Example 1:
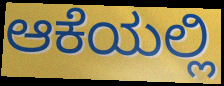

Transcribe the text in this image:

ಆಕೆಯಲ್ಲಿ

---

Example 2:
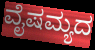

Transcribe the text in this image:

ವೈಷಮ್ಯದ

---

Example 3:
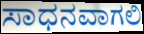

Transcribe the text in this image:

ಸಾಧನವಾಗಲಿ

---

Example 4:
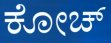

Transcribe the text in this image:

ಕೋಚ್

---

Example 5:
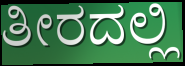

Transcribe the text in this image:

ತೀರದಲ್ಲಿ